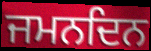
ਜਮਨਦਿਨ